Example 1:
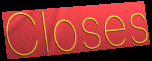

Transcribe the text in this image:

Closes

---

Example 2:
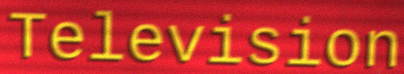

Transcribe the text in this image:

Television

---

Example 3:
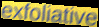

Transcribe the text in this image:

exfoliative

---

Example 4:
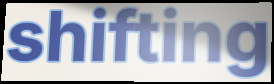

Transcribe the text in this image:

shifting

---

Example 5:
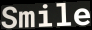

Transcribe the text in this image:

Smile